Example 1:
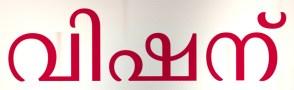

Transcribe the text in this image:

വിഷന്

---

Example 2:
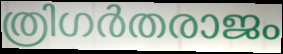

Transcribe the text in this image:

ത്രിഗർതരാജം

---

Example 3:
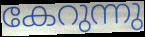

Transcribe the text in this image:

കേറുന്നു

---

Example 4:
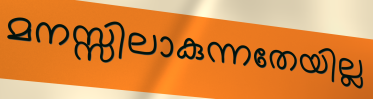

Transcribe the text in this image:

മനസ്സിലാകുന്നതേയില്ല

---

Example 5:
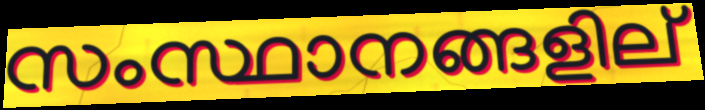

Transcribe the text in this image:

സംസ്ഥാനങ്ങളില്